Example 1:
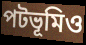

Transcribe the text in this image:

পটভূমিও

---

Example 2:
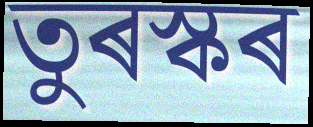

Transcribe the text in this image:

তুৰস্কৰ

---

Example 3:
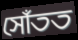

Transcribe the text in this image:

সোঁতত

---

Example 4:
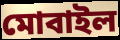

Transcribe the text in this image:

মোবাইল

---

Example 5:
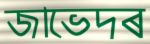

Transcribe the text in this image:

জাভেদৰ